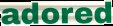
adored